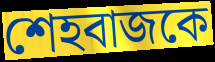
শেহবাজকে